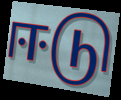
ஈடு